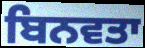
ਬਿਨਵਤਾ